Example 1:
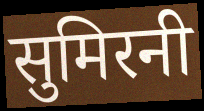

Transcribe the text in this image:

सुमिरनी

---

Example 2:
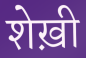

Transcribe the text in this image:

शेख़ी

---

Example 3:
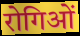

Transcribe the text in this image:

रोगिओं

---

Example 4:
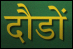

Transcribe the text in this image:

दौडों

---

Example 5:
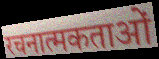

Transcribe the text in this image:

रचनात्मकताओं